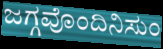
ಜಗ್ಗವೊಂದಿನಿಸುಂ